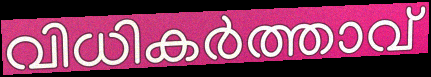
വിധികർത്താവ്